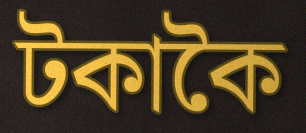
টকাকৈ